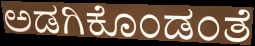
ಅಡಗಿಕೊಂಡಂತೆ